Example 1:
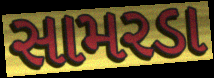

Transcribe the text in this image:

સામરડા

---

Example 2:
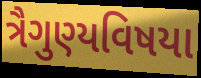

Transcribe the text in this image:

ત્રૈગુણ્યવિષયા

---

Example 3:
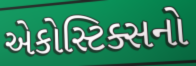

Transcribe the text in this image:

એકોસ્ટિક્સનો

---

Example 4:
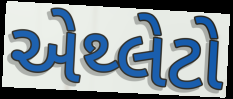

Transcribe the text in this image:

એથ્લેટો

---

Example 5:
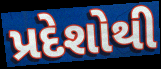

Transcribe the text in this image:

પ્રદેશોથી